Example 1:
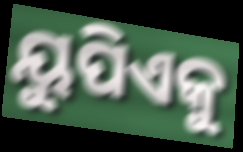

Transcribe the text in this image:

ୟୁପିଏକୁ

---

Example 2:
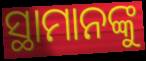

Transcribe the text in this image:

ସ୍ଥାମାନଙ୍କୁ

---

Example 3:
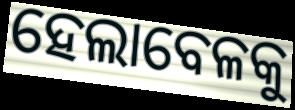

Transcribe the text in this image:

ହେଲାବେଳକୁ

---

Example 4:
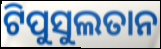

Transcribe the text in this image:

ଟିପୁସୁଲତାନ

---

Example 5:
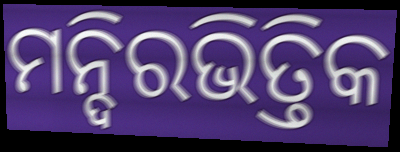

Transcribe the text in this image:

ମନ୍ଦିରଭିତ୍ତିକ